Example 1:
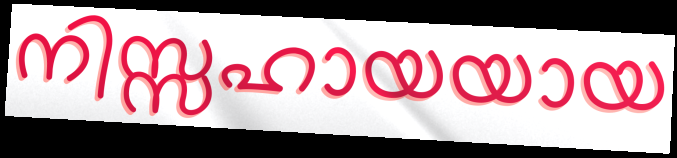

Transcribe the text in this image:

നിസ്സഹായയായ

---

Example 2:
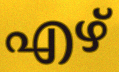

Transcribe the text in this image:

എഴ്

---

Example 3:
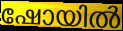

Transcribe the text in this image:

ഷോയിൽ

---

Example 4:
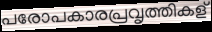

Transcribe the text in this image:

പരോപകാരപ്രവൃത്തികള്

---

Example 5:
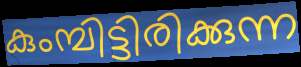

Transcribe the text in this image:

കുംമ്പിട്ടിരിക്കുന്ന